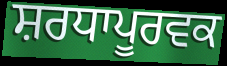
ਸ਼ਰਧਾਪੂਰਵਕ